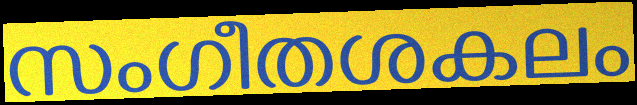
സംഗീതശകലം